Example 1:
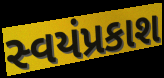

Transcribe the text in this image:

સ્વયંપ્રકાશ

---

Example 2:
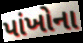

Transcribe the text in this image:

પાંખોના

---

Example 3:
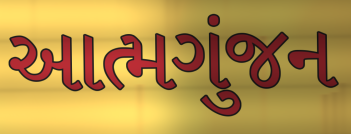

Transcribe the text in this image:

આત્મગુંજન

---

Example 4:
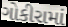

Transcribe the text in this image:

ગોકીરામાં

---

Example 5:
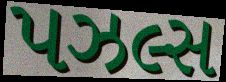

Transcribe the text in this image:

પઝલ્સ